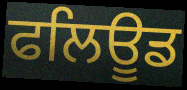
ਫਲਿਊਡ